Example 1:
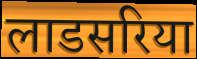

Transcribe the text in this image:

लाडसरिया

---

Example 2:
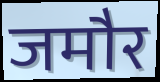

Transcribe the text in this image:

जमौर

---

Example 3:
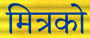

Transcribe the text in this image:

मित्रको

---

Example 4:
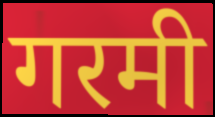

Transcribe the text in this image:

गरमी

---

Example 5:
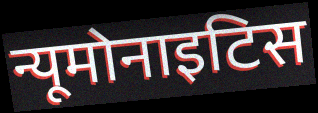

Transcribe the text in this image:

न्यूमोनाइटिस